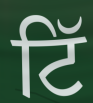
ਟਿੱ